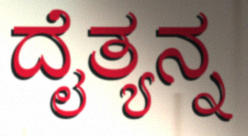
ದೈತ್ಯನ್ನ